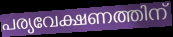
പര്യവേക്ഷണത്തിന്